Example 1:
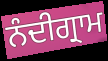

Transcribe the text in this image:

ਨੰਦੀਗ੍ਰਾਮ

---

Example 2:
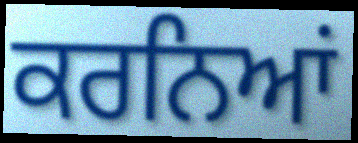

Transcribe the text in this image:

ਕਰਨਿਆਂ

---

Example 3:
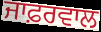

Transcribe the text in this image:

ਜਾਫ਼ਰਵਾਲ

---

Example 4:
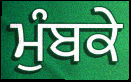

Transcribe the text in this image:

ਮੁੰਬਕੇ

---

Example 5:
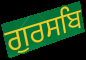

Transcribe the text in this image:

ਗੁਰਸਬਿ